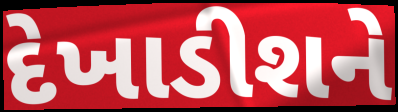
દેખાડીશને